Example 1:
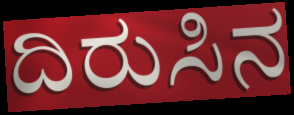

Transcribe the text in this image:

ದಿರುಸಿನ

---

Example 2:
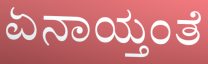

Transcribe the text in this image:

ಏನಾಯ್ತಂತೆ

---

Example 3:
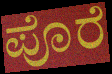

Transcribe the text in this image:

ಪೊರೆ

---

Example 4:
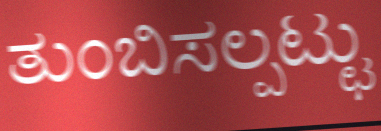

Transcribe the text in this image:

ತುಂಬಿಸಲ್ಪಟ್ಟು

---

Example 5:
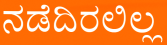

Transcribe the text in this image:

ನಡೆದಿರಲಿಲ್ಲ